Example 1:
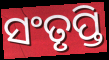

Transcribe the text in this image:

ସଂତୃପ୍ତି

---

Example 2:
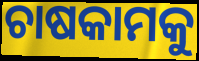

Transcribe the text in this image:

ଚାଷକାମକୁ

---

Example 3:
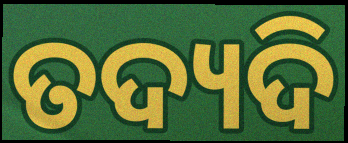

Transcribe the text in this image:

ତଦ୍ୟଦି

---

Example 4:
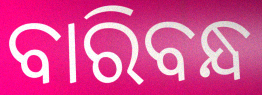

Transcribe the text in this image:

ବାରିବନ୍ଧ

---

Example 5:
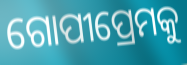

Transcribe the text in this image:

ଗୋପୀପ୍ରେମକୁ